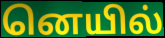
னெயில்